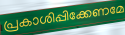
പ്രകാശിപ്പിക്കേണമേ